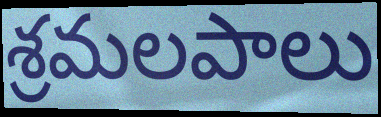
శ్రమలపాలు